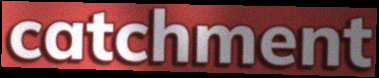
catchment